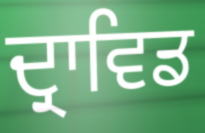
ਦ੍ਰਾਵਿਡ